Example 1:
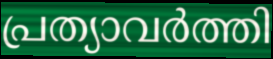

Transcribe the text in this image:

പ്രത്യാവർത്തി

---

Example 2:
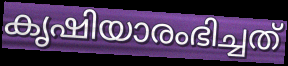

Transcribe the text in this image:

കൃഷിയാരംഭിച്ചത്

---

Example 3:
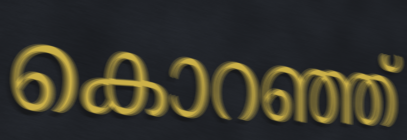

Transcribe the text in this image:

കൊറഞ്ഞ്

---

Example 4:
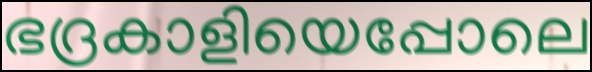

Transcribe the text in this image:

ഭദ്രകാളിയെപ്പോലെ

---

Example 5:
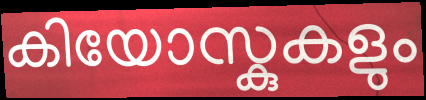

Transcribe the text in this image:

കിയോസ്കുകളും